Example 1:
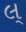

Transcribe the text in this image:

લ્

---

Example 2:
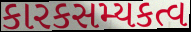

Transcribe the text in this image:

કારકસમ્યકત્વ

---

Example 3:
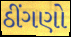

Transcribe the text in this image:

ઠીંગણો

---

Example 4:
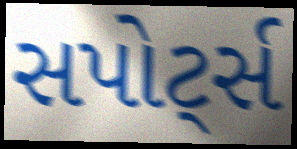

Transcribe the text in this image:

સપોર્ટ્સ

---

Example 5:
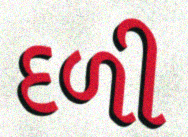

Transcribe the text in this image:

દળી